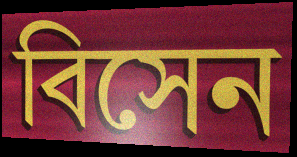
বিসেন